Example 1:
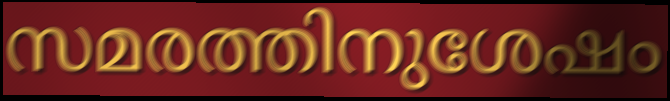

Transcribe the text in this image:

സമരത്തിനുശേഷം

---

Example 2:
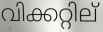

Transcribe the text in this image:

വിക്കറ്റില്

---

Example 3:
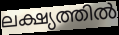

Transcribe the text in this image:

ലക്ഷ്യത്തിൽ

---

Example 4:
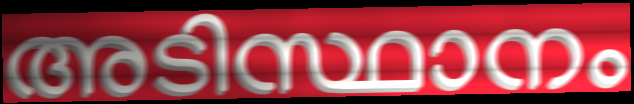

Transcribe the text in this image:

അടിസ്ഥാനം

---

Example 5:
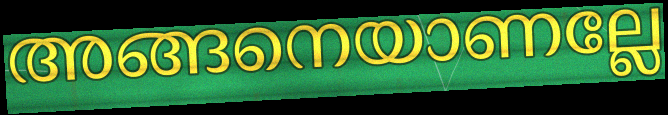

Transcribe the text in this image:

അങ്ങനെയാണല്ലേ